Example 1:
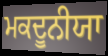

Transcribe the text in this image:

ਮਕਦੂਨੀਯਾ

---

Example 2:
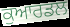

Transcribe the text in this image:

ਕੁਆਰਡਲ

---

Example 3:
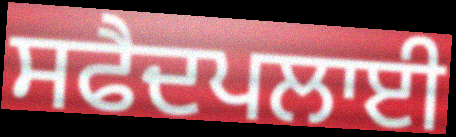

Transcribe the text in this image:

ਸਫੈਦਪਲਾਈ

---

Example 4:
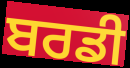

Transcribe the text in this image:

ਬਰਡੀ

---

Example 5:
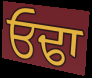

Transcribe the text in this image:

ਓਢਾ